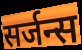
सर्जन्स